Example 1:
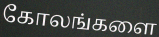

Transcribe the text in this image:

கோலங்களை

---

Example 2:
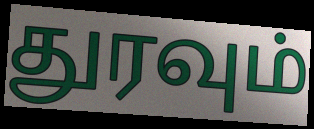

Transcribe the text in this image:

துரவும்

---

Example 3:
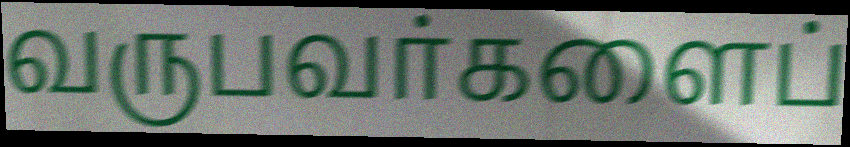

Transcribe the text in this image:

வருபவர்களைப்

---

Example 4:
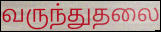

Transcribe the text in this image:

வருந்துதலை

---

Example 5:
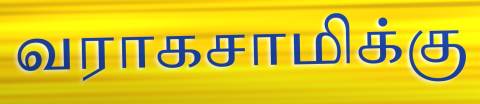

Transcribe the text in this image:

வராகசாமிக்கு